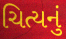
ચિત્યનું